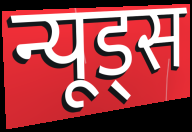
न्यूड्स